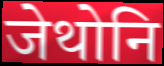
जेथोनि